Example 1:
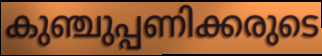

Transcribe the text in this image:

കുഞ്ചുപ്പണിക്കരുടെ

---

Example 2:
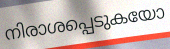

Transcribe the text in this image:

നിരാശപ്പെടുകയോ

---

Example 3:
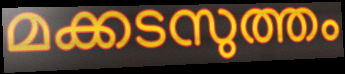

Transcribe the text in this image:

മക്കടസുത്തം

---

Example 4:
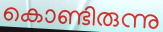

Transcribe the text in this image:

കൊണ്ടിരുന്നു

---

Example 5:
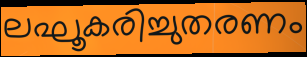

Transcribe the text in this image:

ലഘൂകരിച്ചുതരണം